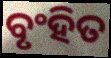
ବୃଂହିତ